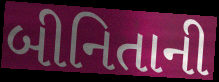
બીનિતાની